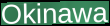
Okinawa